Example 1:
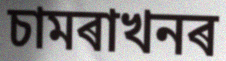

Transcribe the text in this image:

চামৰাখনৰ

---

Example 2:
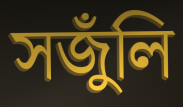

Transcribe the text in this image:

সজুঁলি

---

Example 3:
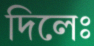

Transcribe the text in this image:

দিলেঃ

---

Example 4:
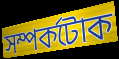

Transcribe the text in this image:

সম্পৰ্কটোক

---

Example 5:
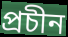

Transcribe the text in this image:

প্ৰচীন